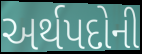
અર્થપદોની